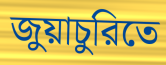
জুয়াচুরিতে